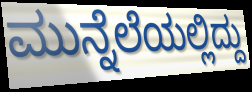
ಮುನ್ನೆಲೆಯಲ್ಲಿದ್ದು